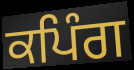
ਕਪਿੰਗ